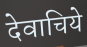
देवाचिये